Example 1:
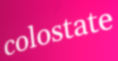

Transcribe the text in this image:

colostate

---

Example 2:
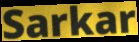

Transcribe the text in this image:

Sarkar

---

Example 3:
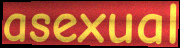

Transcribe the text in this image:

asexual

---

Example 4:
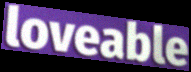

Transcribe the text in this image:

loveable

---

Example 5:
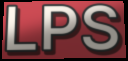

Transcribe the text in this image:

LPS